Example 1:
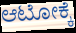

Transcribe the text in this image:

ಆಟೋಕ್ಕೆ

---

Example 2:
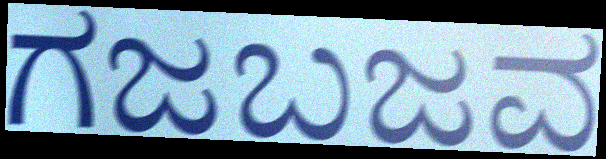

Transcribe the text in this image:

ಗಜಬಜವ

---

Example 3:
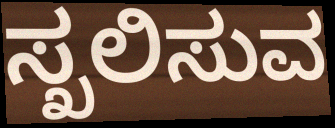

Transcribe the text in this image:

ಸ್ಖಲಿಸುವ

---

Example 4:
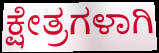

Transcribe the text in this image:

ಕ್ಷೇತ್ರಗಳಾಗಿ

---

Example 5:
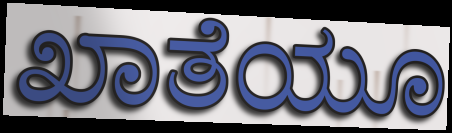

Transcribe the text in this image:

ಖಾತೆಯೂ